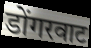
डोंगरवाट